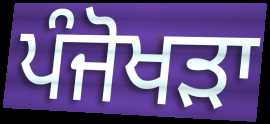
ਪੰਜੋਖੜਾ